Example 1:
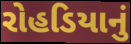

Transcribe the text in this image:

રોહડિયાનું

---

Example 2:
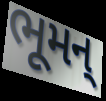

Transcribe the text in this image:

ભૂમન્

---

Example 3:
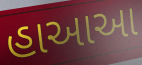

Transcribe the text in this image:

હાઆઆ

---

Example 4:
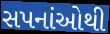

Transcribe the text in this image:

સપનાંઓથી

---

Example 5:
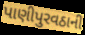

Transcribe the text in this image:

પાણીપુરવઠાની